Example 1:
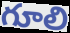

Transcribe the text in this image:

గూలి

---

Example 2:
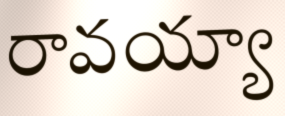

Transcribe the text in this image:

రావయ్యా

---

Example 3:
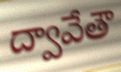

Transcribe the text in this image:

ద్వావేతౌ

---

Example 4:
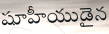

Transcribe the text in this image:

షూహీయుడైన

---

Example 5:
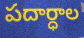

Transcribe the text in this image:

పదార్ధాల